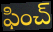
ఫించ్